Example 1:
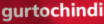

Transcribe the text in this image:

gurtochindi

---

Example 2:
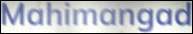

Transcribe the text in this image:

Mahimangad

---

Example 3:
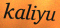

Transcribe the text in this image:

kaliyu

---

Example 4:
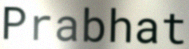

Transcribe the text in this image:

Prabhat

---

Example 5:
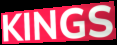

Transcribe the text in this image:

KINGS